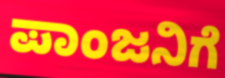
ಪಾಂಜನಿಗೆ